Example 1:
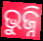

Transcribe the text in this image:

ଭୁଜ୍ନି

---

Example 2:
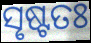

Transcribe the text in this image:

ସୃଷ୍ଟତଃ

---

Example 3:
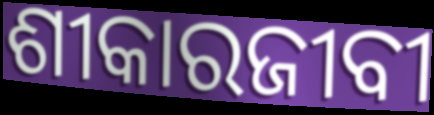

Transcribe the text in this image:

ଶୀକାରଜୀବୀ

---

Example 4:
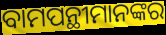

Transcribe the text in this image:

ବାମପନ୍ଥୀମାନଙ୍କର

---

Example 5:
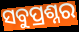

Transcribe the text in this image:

ସବୁପ୍ରଶ୍ନର